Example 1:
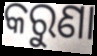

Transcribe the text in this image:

କରୁଣା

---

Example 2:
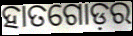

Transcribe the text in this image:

ହାତଗୋଡ଼ର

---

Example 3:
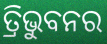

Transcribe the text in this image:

ତ୍ରିଭୁବନର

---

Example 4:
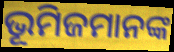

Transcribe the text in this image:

ଭୂମିଜମାନଙ୍କ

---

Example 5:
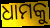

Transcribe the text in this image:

ଧାମକୁ